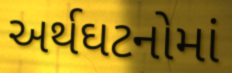
અર્થઘટનોમાં